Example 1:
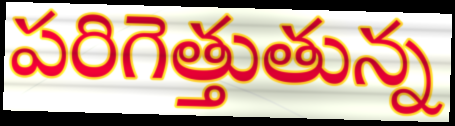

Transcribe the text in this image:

పరిగెత్తుతున్న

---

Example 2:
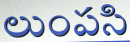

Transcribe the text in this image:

లుంపసి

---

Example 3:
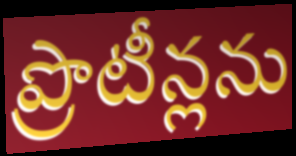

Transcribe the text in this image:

ప్రొటీన్లను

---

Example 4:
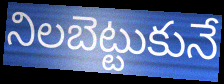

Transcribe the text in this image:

నిలబెట్టుకునే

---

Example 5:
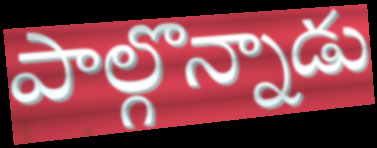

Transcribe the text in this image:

పాల్గొన్నాడు